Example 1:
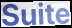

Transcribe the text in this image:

Suite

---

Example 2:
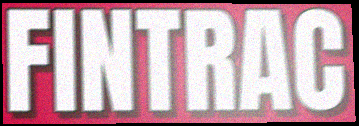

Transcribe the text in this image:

FINTRAC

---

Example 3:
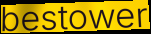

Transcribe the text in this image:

bestower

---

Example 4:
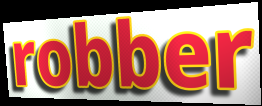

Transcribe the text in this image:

robber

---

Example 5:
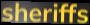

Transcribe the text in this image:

sheriffs